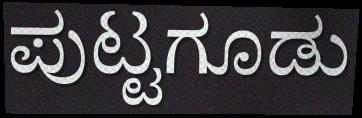
ಪುಟ್ಟಗೂಡು